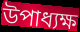
উপাধ্যক্ষ